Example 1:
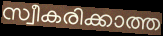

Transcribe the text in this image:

സ്വീകരിക്കാത്ത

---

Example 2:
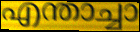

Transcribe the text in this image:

എന്താച്ചാ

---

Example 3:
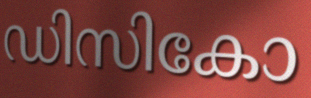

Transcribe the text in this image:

ഡിസികോ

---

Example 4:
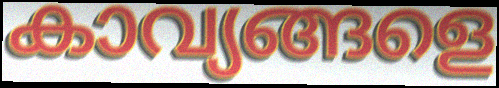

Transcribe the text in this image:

കാവ്യങ്ങളെ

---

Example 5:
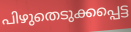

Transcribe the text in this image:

പിഴുതെടുക്കപ്പെട്ട